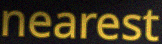
nearest